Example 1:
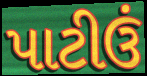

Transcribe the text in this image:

પાટીઉં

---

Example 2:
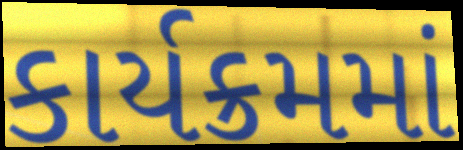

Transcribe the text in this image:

કાર્યક્રમમાં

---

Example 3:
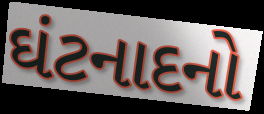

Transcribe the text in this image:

ઘંટનાદનો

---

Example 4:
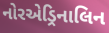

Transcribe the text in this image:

નોરએડ્રિનાલિન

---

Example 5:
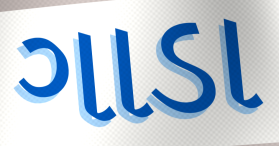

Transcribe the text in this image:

ગાડા